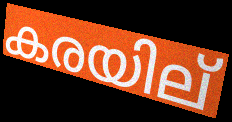
കരയില്